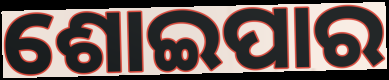
ଶୋଇପାର